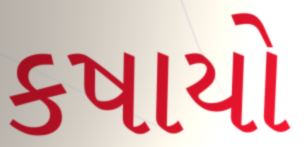
કષાયો